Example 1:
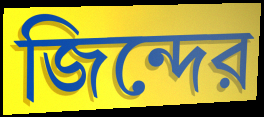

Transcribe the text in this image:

জিন্দের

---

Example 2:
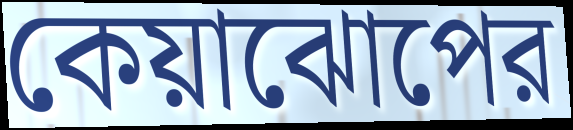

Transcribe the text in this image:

কেয়াঝোপের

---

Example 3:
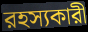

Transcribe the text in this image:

রহস্যকারী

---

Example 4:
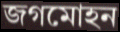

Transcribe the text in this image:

জগমোহন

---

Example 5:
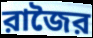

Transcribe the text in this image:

রাজৈর